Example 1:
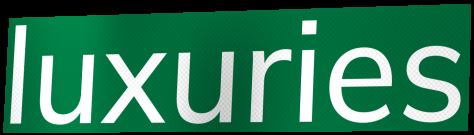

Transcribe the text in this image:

luxuries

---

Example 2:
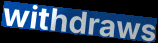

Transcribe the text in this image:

withdraws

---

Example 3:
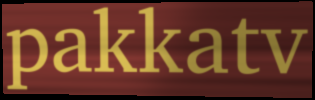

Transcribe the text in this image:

pakkatv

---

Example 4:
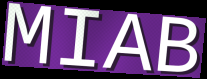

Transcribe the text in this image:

MIAB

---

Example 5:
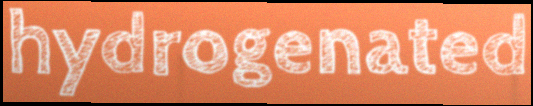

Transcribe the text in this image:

hydrogenated